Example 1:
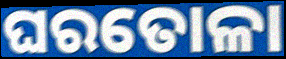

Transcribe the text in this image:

ଘରତୋଳା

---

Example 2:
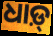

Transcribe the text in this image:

ଧାଡ଼୍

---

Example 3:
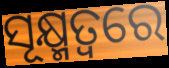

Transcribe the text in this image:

ସୂକ୍ଷ୍ମତ୍ୱରେ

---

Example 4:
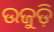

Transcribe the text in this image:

ଉଜୁଡ଼ି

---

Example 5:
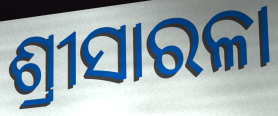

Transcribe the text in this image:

ଶ୍ରୀସାରଳା